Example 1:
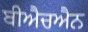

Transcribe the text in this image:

ਬੀਐਚਐਨ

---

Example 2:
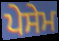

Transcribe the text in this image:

ਪੇਸੇਮ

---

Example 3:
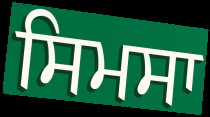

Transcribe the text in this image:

ਸਿਮਸਾ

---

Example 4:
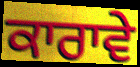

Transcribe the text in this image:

ਕਾਰਾਵੇ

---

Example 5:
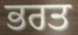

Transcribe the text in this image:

ਭਰਤ